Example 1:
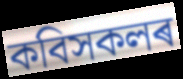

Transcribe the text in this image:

কবিসকলৰ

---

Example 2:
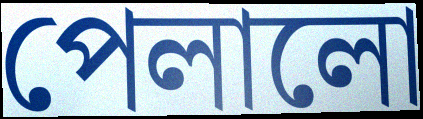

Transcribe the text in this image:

পেলালো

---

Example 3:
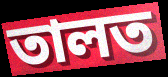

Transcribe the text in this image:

তালত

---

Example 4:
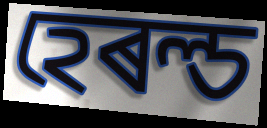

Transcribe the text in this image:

হেৰল্ড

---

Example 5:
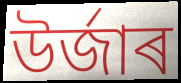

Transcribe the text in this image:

উৰ্জাৰ